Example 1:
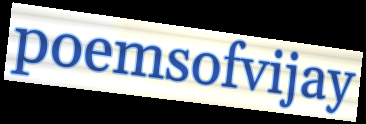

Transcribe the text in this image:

poemsofvijay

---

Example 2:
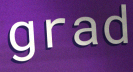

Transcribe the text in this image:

grad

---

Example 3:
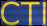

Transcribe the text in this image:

CTI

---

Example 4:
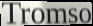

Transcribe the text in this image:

Tromso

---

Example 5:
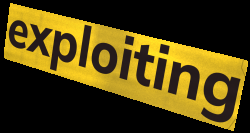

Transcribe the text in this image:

exploiting